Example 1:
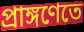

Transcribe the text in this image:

প্রাঙ্গণেতে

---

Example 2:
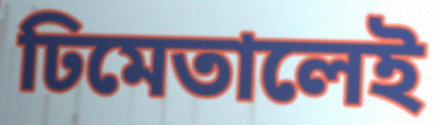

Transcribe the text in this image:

ঢিমেতালেই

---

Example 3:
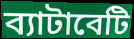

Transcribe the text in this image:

ব্যাটাবেটি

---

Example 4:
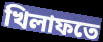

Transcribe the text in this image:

খিলাফতে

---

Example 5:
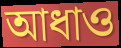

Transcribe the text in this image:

আধাও